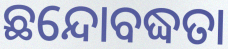
ଛନ୍ଦୋବଦ୍ଧତା